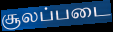
சூலப்படை